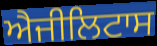
ਐਜੀਲਿਟਾਸ